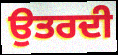
ਉਤਰਦੀ